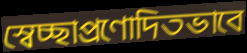
স্বেচ্ছাপ্রণোদিতভাবে